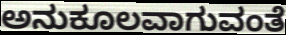
ಅನುಕೂಲವಾಗುವಂತೆ